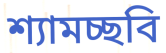
শ্যামচ্ছবি